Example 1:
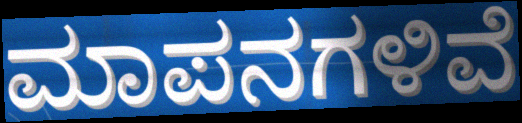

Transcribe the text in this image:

ಮಾಪನಗಳಿವೆ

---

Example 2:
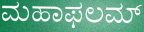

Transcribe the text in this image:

ಮಹಾಫಲಮ್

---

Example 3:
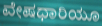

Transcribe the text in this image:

ವೇಷಧಾರಿಯೂ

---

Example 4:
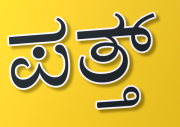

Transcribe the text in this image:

ಪತ್ತ್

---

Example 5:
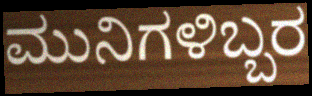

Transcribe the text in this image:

ಮುನಿಗಳಿಬ್ಬರ